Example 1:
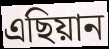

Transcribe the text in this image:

এছিয়ান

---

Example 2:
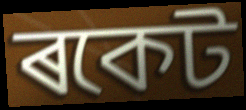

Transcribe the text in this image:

ৰকেট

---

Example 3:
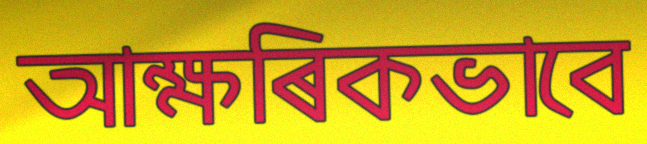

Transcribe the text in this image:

আক্ষৰিকভাবে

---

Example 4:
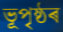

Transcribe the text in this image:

ভূপৃষ্ঠৰ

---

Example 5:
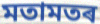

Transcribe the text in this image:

মতামতৰ